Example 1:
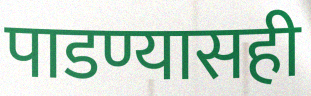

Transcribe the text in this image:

पाडण्यासही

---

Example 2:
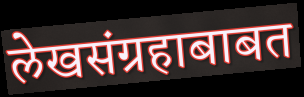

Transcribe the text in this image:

लेखसंग्रहाबाबत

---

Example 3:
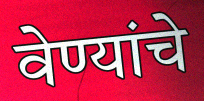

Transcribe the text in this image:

वेण्यांचे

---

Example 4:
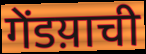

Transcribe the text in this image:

गेंडय़ाची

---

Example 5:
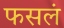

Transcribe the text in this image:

फसलं